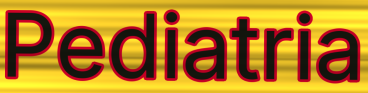
Pediatria